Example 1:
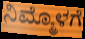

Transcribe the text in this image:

ನಿಮ್ಮೊಳಗೆ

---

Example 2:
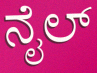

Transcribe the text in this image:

ನೈಲ್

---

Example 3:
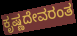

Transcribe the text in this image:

ಕೃಷ್ಣದೇವರಂತ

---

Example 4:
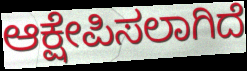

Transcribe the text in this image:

ಆಕ್ಷೇಪಿಸಲಾಗಿದೆ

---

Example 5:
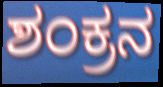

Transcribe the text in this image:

ಶಂಕ್ರನ